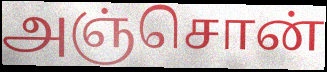
அஞ்சொன்